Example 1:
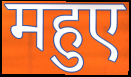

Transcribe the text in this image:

महुए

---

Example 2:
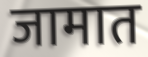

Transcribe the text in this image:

जामात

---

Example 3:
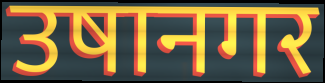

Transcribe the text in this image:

उषानगर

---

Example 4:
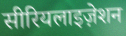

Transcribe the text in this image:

सीरियलाइज़ेशन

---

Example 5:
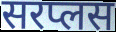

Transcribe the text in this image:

सरप्लस